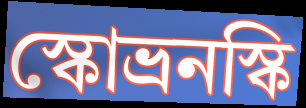
স্কোভ্রনস্কি